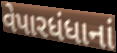
વેપારધંધાનાં